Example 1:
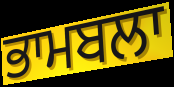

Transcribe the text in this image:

ਭਾਮਬਲਾ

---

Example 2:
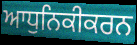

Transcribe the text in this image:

ਆਧੁਨਿਕੀਕਰਨ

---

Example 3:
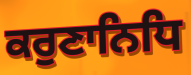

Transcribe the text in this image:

ਕਰੁਣਾਨਿਧਿ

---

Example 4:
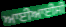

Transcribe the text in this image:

ਆਈਆਈਸੀ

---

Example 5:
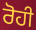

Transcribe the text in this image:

ਰੋਹੀ